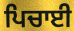
ਪਿਚਾਈ